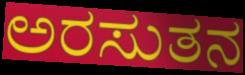
ಅರಸುತನ